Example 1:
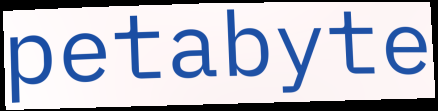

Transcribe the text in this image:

petabyte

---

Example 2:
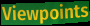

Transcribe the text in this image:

Viewpoints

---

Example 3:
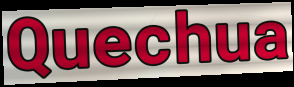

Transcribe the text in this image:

Quechua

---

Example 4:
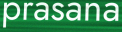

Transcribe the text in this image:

prasana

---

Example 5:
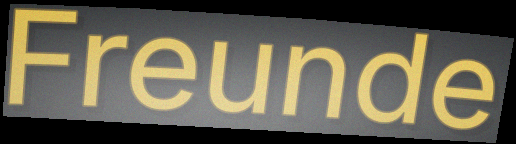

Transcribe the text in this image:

Freunde